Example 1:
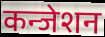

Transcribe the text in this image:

कन्जेशन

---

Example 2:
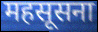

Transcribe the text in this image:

महसूसना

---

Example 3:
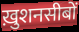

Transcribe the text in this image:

ख़ुशनसीबों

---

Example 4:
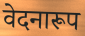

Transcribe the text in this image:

वेदनारूप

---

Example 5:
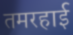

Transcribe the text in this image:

तमरहाई